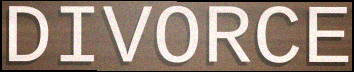
DIVORCE